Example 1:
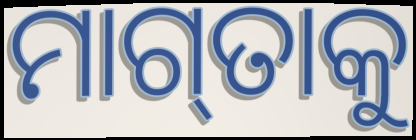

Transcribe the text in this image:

ମାଗ୍‌ତାକୁ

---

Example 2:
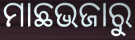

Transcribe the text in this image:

ମାଛଭଜାରୁ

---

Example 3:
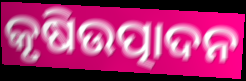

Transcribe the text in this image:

କୃଷିଉତ୍ପାଦନ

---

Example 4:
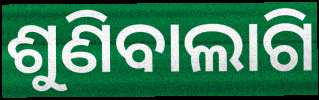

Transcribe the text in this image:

ଶୁଣିବାଲାଗି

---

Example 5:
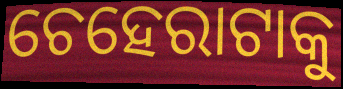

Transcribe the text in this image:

ଚେହେରାଟାକୁ